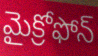
మైక్రోఫోన్